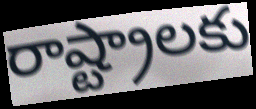
రాష్ట్రాలకు